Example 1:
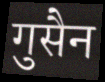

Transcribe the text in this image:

गुसैन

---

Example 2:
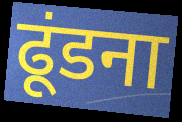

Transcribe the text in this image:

ढूंडना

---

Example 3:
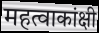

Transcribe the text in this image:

महत्‍वाकांक्षी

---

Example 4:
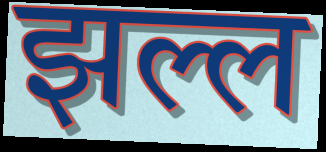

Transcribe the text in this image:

झल्ल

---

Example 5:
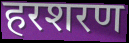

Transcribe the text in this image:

हरशरण